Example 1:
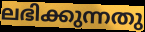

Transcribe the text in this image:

ലഭിക്കുന്നതു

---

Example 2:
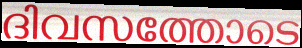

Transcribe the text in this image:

ദിവസത്തോടെ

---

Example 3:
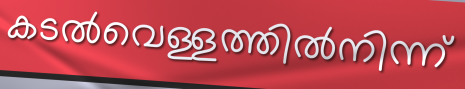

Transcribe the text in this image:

കടൽവെള്ളത്തിൽനിന്ന്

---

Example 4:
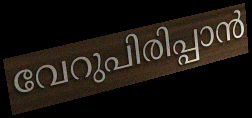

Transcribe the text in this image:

വേറുപിരിപ്പാൻ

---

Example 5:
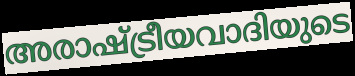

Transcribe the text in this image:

അരാഷ്ട്രീയവാദിയുടെ